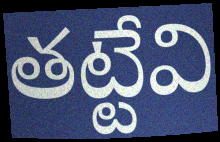
తట్టేవి